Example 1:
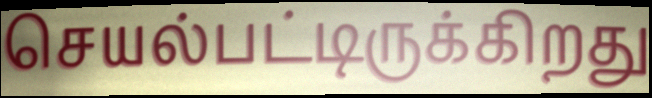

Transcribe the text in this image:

செயல்பட்டிருக்கிறது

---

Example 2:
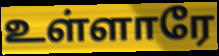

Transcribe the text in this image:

உள்ளாரே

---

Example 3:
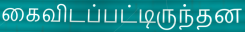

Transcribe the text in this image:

கைவிடப்பட்டிருந்தன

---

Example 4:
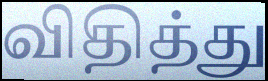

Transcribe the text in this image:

விதித்து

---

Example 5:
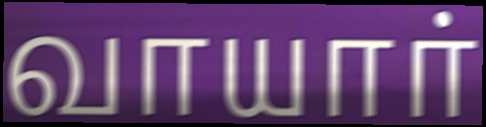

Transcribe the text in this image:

வாயார்